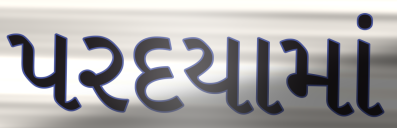
પરદયામાં